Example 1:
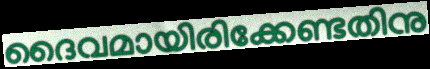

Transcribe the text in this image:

ദൈവമായിരിക്കേണ്ടതിനു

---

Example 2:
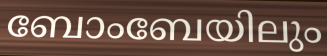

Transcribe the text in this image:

ബോംബേയിലും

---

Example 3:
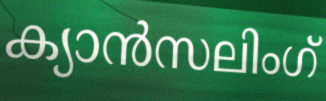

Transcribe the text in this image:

ക്യാൻസലിംഗ്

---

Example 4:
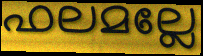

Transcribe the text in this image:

ഫലമല്ലേ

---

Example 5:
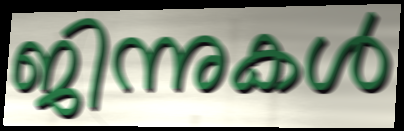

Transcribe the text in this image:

ജിന്നുകൾ